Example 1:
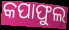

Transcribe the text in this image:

କପାଫୁଲ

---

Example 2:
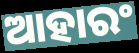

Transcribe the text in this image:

ଆହାରଂ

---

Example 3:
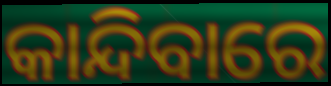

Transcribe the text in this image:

କାନ୍ଦିବାରେ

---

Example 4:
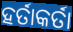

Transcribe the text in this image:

ହର୍ତାକର୍ତା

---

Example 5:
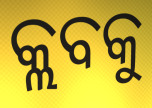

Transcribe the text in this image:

କ୍ଲବକୁ